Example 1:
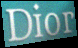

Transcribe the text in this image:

Dior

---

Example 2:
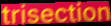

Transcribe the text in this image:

trisection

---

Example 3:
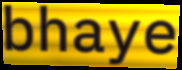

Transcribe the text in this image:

bhaye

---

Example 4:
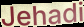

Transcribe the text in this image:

Jehadi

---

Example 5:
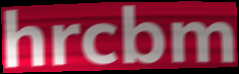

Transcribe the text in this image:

hrcbm